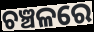
ଚଞ୍ଚଳରେ